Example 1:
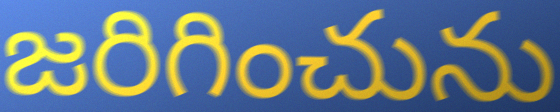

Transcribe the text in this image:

జరిగించును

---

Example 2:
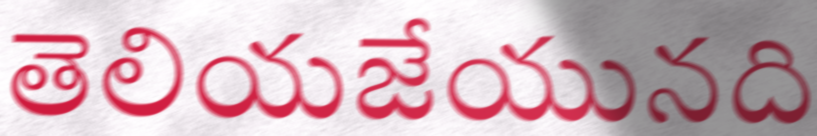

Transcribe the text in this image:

తెలియజేయునది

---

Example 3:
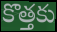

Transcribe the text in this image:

కొత్తకు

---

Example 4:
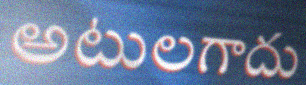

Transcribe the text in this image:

అటులగాదు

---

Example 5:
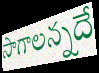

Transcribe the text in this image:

సాగాలన్నదే